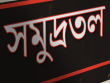
সমুদ্রতল